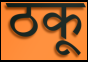
ठकू